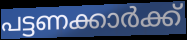
പട്ടണക്കാർക്ക്